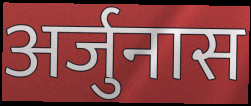
अर्जुनास